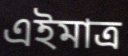
এইমাত্ৰ